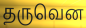
தருவென